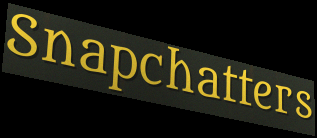
Snapchatters